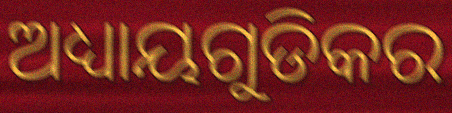
ଅଧ୍ୟାୟଗୁଡିକର